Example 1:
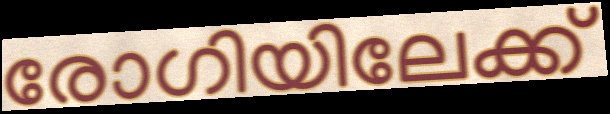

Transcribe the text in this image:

രോഗിയിലേക്ക്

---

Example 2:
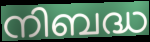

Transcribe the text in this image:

നിബദ്ധ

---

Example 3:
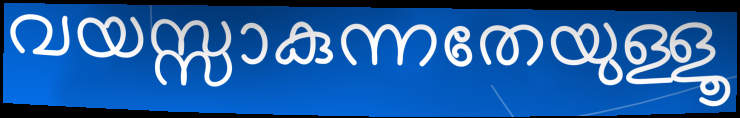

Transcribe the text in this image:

വയസ്സാകുന്നതേയുള്ളൂ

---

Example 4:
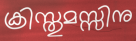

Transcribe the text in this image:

ക്രിസ്തുമസ്സിനു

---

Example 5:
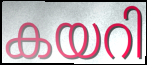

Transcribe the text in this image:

കയറി